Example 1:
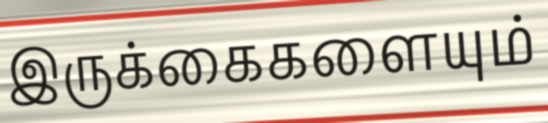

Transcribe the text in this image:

இருக்கைகளையும்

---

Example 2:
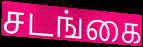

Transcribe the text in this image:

சடங்கை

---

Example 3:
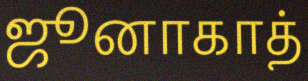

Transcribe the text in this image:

ஜூனாகாத்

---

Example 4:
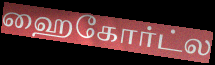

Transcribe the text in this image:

ஹைகோர்ட்ல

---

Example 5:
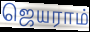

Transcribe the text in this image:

ஜெயராம்